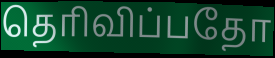
தெரிவிப்பதோ